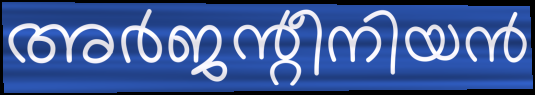
അർജന്റീനിയൻ